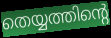
തെയ്യത്തിന്റെ